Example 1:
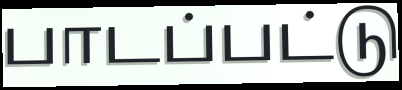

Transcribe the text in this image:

பாடப்பட்டு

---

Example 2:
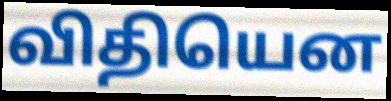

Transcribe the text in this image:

விதியென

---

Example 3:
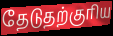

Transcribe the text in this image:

தேடுதற்குரிய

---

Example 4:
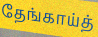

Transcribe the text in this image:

தேங்காய்த்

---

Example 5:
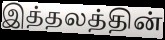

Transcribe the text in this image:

இத்தலத்தின்